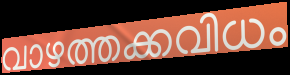
വാഴത്തക്കവിധം